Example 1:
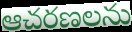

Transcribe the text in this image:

ఆచరణలను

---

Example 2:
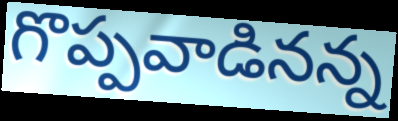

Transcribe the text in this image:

గొప్పవాడినన్న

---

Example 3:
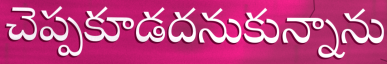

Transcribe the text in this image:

చెప్పకూడదనుకున్నాను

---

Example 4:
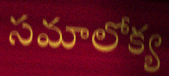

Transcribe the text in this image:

సమాలోక్య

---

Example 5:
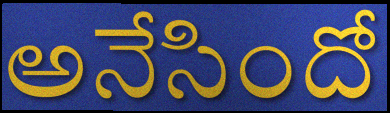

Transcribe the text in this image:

అనేసిందో